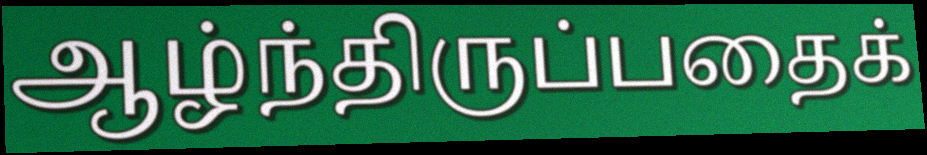
ஆழ்ந்திருப்பதைக்